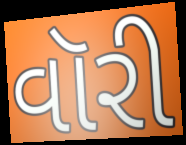
વૉરી